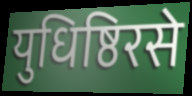
युधिष्ठिरसे